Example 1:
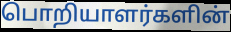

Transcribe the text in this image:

பொறியாளர்களின்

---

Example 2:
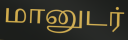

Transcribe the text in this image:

மானுடர்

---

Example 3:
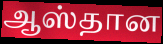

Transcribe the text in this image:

ஆஸ்தான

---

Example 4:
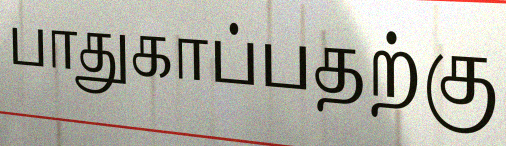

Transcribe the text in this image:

பாதுகாப்பதற்கு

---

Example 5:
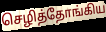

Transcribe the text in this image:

செழித்தோங்கிய